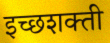
इच्छशक्ती